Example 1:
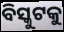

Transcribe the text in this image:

ବିସ୍କୁଟକୁ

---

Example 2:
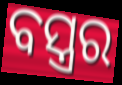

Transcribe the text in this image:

ବସ୍ତ୍ରର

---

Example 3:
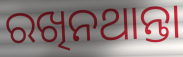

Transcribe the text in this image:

ରଖିନଥାନ୍ତା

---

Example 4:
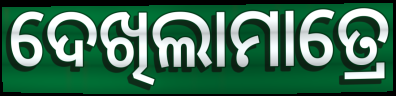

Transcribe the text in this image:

ଦେଖିଲାମାତ୍ରେ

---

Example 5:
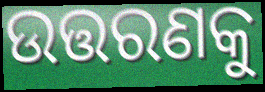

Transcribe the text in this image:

ଉତ୍ତରଣକୁ